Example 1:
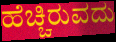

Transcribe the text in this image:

ಹೆಚ್ಚಿರುವದು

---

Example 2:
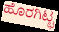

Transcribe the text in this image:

ಹೊರಗಿಟ್ಟ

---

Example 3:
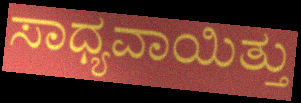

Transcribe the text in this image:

ಸಾಧ್ಯವಾಯಿತ್ತು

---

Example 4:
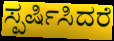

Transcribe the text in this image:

ಸ್ಪರ್ಷಿಸಿದರೆ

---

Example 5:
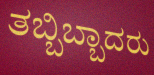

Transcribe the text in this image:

ತಬ್ಬಿಬ್ಬಾದರು